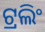
ଟ୍ରଲିଂ